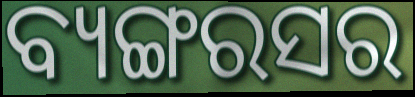
ବ୍ୟଙ୍ଗରସର